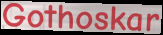
Gothoskar